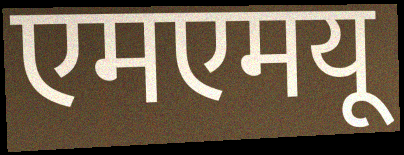
एमएमयू